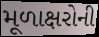
મૂળાક્ષરોની